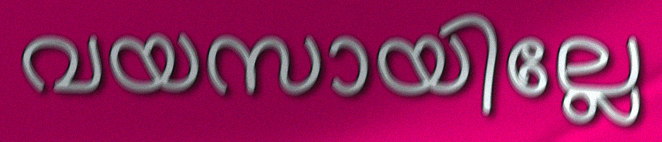
വയസായില്ലേ